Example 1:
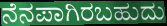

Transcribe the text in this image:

ನೆನಪಾಗಿರಬಹುದು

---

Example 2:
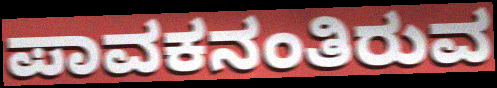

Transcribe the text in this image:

ಪಾವಕನಂತಿರುವ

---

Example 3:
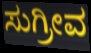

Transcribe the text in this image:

ಸುಗ್ರೀವ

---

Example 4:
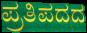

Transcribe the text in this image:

ಪ್ರತಿಪದದ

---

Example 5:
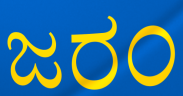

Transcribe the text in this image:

ಜರಂ